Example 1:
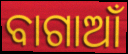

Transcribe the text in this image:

ବାଗାଆଁ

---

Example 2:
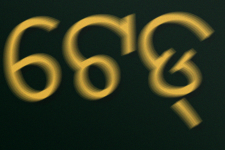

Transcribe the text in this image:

ଟେଡ୍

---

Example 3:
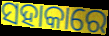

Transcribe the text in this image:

ସହାକାରେ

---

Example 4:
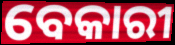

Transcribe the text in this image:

ବେକାରୀ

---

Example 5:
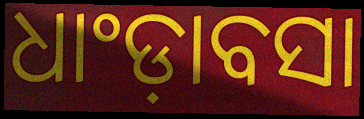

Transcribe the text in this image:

ଧାଂଡ଼ାବସା